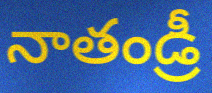
నాతండ్రీ